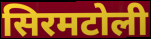
सिरमटोली